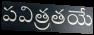
పవిత్రతయే